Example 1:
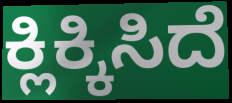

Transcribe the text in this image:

ಕ್ಲಿಕ್ಕಿಸಿದೆ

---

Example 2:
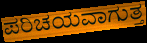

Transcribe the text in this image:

ಪರಿಚಯವಾಗುತ್ತ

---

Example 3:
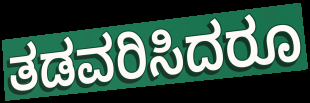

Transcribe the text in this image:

ತಡವರಿಸಿದರೂ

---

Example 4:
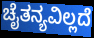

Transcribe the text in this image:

ಚೈತನ್ಯವಿಲ್ಲದೆ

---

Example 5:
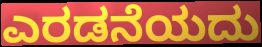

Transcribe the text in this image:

ಎರಡನೆಯದು